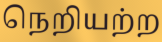
நெறியற்ற